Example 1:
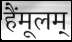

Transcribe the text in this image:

हैंमूलम्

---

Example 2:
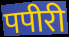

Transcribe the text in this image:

पपीरी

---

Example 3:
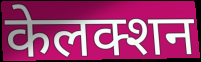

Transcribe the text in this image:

केलक्शन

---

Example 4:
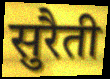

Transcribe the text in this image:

सुरैती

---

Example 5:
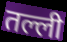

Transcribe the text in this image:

तल्ली